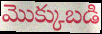
మొక్కుబడి